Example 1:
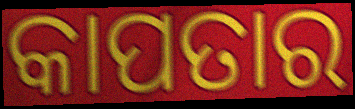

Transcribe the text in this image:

କାପତାର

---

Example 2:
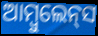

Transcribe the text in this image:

ଆମ୍ବୁଲେନ୍‍ସ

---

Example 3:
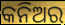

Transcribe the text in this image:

କନିଅର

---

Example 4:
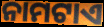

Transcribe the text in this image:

ନାମଟାଏ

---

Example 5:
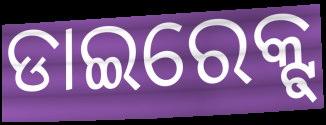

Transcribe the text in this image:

ଡାଇରେକ୍ଟ୍